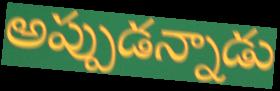
అప్పుడన్నాడు